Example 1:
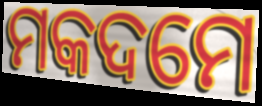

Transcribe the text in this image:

ମକଦମେ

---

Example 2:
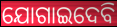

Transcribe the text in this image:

ଯୋଗାଇଦେବି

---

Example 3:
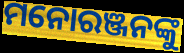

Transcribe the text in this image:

ମନୋରଞ୍ଜନଙ୍କୁ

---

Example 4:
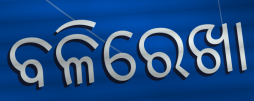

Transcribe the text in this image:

ବଳିରେଖା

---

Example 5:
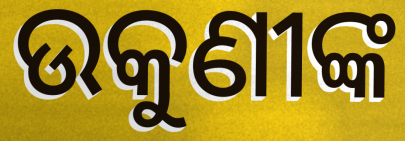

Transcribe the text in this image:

ଉକୁଣୀଙ୍କ